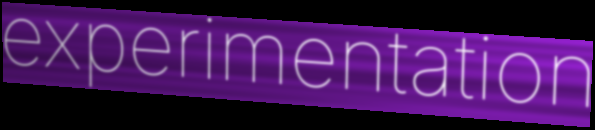
experimentation